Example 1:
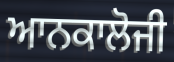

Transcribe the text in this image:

ਆਨਕਾਲੋਜੀ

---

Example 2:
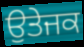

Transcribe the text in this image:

ਉਤੇਜਕ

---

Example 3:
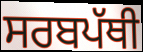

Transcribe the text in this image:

ਸਰਬਪੱਥੀ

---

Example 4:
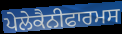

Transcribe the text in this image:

ਪੇਲੇਕੈਨੀਫਾਰਮਸ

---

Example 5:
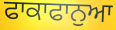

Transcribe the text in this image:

ਫਾਕਾਫਾਨੁਆ